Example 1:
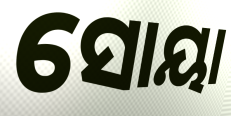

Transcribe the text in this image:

ସୋୟା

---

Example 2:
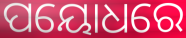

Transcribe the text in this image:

ପୟୋଧରେ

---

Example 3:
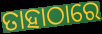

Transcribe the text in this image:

ତାହାଠାରେ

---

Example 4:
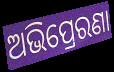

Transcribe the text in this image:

ଅଭିପ୍ରେରଣା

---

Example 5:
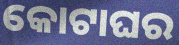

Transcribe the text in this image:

କୋଟାଘର